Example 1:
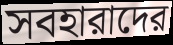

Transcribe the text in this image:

সবহারাদের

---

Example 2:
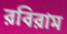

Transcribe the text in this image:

রবিরাম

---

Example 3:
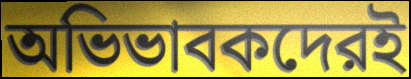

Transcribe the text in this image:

অভিভাবকদেরই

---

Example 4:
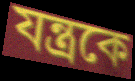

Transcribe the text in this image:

যন্ত্রকে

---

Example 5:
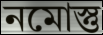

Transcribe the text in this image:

নমোস্তু